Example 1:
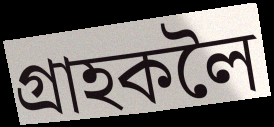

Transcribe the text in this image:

গ্ৰাহকলৈ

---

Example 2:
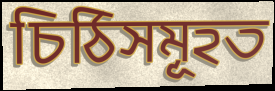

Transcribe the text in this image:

চিঠিসমূহত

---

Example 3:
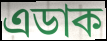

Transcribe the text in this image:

এডাক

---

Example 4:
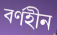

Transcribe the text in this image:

বৰ্ণহীন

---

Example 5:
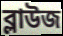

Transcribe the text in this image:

ব্লাউজ